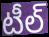
టీల్